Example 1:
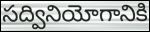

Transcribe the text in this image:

సద్వినియోగానికి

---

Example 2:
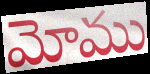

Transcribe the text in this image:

మోము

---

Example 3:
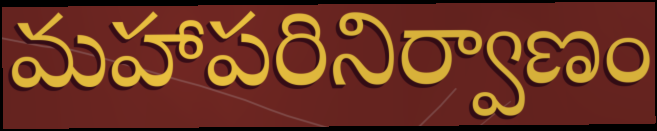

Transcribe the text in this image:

మహాపరినిర్వాణం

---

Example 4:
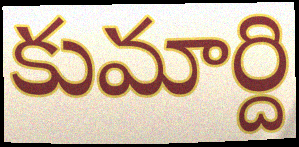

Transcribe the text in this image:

కుమార్ది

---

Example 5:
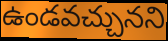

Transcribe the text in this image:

ఉండవచ్చునని